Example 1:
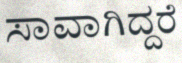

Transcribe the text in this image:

ಸಾವಾಗಿದ್ದರೆ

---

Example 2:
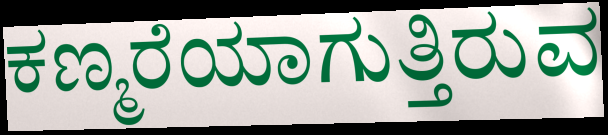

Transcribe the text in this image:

ಕಣ್ಮರೆಯಾಗುತ್ತಿರುವ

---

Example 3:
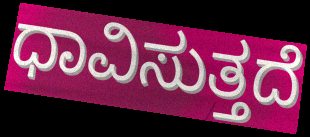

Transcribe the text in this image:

ಧಾವಿಸುತ್ತದೆ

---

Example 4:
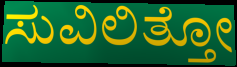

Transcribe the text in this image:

ಸುವಿಲಿತ್ತೋ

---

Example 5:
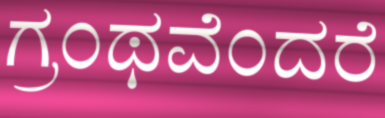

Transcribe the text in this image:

ಗ್ರಂಥವೆಂದರೆ